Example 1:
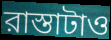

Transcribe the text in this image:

রাস্তাটাও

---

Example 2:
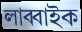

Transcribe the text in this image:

লাব্বাইক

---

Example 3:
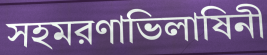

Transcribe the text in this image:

সহমরণাভিলাষিনী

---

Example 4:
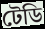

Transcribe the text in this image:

টেডি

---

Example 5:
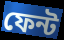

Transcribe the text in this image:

ফেন্ট